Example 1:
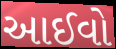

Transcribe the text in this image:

આઈવો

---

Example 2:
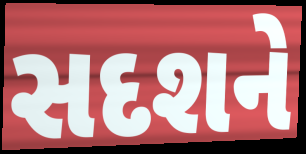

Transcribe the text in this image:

સદશને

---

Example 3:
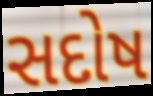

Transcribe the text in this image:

સદોષ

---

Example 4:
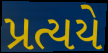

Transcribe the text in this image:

પ્રત્યયે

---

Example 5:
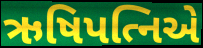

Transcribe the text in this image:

ઋષિપત્નિએ